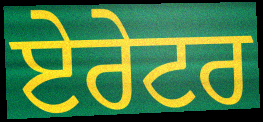
ਏਰੇਟਰ